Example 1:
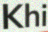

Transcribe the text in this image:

Khi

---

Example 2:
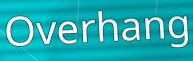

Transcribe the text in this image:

Overhang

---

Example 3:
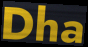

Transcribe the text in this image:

Dha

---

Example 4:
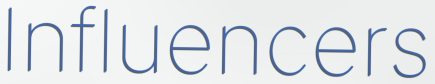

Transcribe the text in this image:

Influencers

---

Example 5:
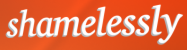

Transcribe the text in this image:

shamelessly